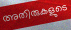
അതിരുകളുടെ